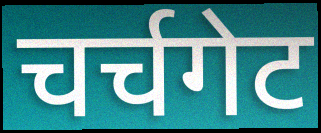
चर्चगेट